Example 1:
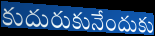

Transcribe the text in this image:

కుదురుకునేందుకు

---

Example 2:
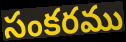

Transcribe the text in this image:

సంకరము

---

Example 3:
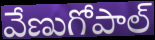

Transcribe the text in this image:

వేణుగోపాల్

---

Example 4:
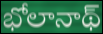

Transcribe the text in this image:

భోలానాథ్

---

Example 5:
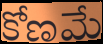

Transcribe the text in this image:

కోణమే